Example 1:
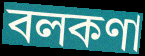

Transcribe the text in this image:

বলকণা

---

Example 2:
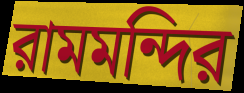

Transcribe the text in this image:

রামমন্দির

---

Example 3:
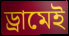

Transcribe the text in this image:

ড্রামেই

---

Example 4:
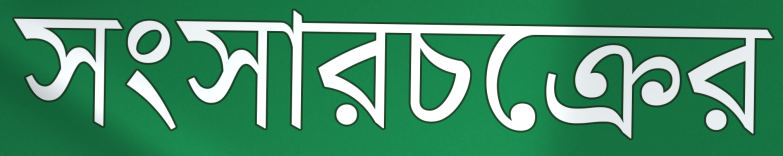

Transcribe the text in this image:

সংসারচক্রের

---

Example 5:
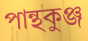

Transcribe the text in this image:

পান্থকুঞ্জ